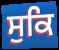
ਸੁਕਿ